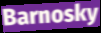
Barnosky